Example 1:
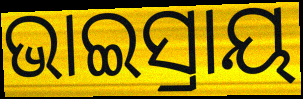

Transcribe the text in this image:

ଭାଇସ୍ରାୟ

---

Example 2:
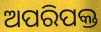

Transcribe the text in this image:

ଅପରିପକ୍ତ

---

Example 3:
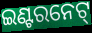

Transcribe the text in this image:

ଇଣ୍ଟରନେଟ୍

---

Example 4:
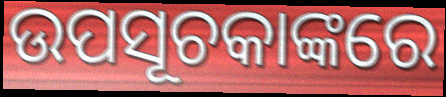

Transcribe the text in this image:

ଉପସୂଚକାଙ୍କରେ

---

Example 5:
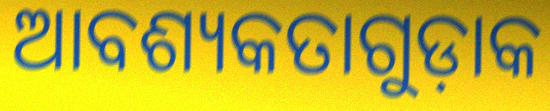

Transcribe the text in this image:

ଆବଶ୍ୟକତାଗୁଡ଼ାକ